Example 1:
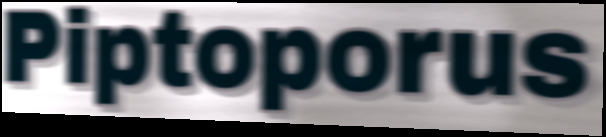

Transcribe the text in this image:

Piptoporus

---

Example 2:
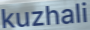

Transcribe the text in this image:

kuzhali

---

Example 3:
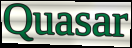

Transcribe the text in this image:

Quasar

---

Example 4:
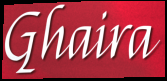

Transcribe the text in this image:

Ghaira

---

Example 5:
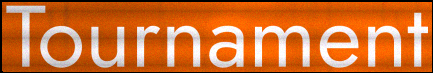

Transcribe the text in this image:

Tournament